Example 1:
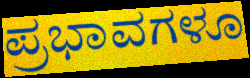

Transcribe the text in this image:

ಪ್ರಭಾವಗಳೂ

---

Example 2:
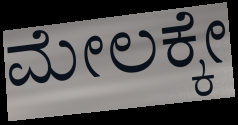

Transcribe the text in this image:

ಮೇಲಕ್ಕೇ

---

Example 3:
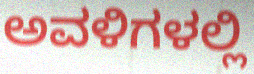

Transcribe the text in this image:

ಅವಳಿಗಳಲ್ಲಿ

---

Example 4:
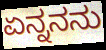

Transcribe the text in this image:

ಏನ್ನನನು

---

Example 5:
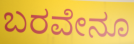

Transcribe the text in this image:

ಬರವೇನೂ